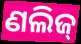
ଣଲିଜ୍